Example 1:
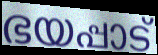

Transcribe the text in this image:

ഭയപ്പാട്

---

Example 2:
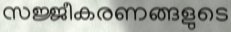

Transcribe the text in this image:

സജ്ജീകരണങ്ങളുടെ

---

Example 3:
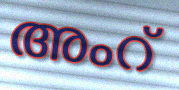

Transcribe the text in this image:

അംറ്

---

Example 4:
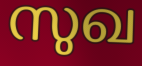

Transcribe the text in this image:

സുഖ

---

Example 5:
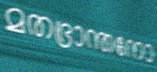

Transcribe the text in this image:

മതഭ്രാന്തനോ